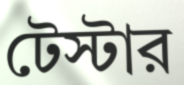
টেস্টার